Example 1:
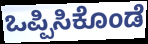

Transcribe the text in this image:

ಒಪ್ಪಿಸಿಕೊಂಡೆ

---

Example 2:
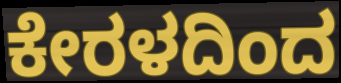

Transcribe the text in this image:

ಕೇರಳದಿಂದ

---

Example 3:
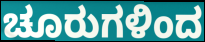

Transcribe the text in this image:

ಚೂರುಗಳಿಂದ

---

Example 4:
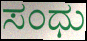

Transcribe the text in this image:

ಸಂಧು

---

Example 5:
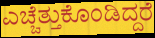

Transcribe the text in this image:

ಎಚ್ಚೆತ್ತುಕೊಂಡಿದ್ದರೆ